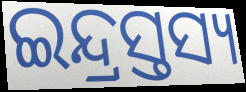
ଇନ୍ଦ୍ରସ୍ତସ୍ୟ